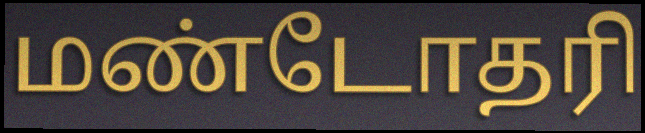
மண்டோதரி